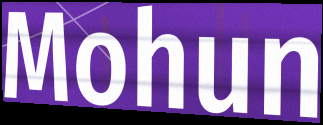
Mohun